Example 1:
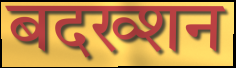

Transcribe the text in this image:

बदख्शन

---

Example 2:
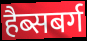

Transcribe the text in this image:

हैब्सबर्ग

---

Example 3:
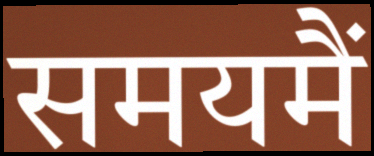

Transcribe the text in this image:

समयमैं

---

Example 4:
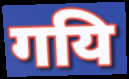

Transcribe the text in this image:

गयि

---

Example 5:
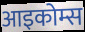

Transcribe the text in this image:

आइकोम्स